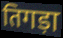
तिगड़ा